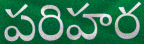
పరిహర